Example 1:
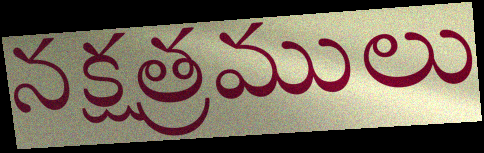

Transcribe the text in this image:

నక్షత్రములు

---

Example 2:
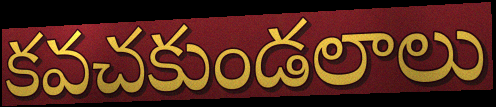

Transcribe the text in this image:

కవచకుండలాలు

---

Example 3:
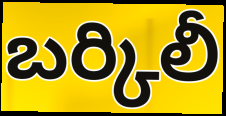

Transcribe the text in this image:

బర్కిలీ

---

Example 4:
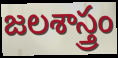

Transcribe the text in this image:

జలశాస్త్రం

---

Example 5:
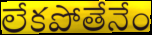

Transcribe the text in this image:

లేకపోతేనేం